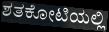
ಶತಕೋಟಿಯಲ್ಲಿ